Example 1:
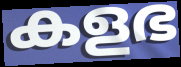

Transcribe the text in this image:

കളഭ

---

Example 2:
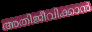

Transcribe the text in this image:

അതിജീവിക്കാൻ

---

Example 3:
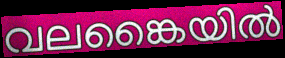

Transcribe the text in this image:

വലങ്കൈയിൽ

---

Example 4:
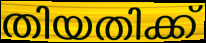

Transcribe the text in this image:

തിയതിക്ക്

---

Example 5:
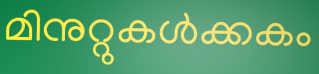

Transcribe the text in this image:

മിനുറ്റുകൾക്കകം